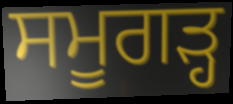
ਸਮੂਗੜ੍ਹ